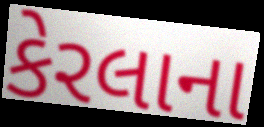
કેરલાના